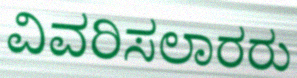
ವಿವರಿಸಲಾರರು